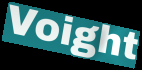
Voight